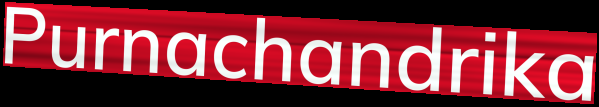
Purnachandrika